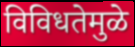
विविधतेमुळे